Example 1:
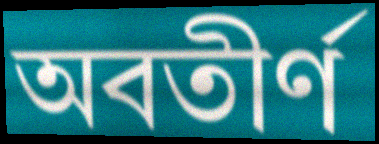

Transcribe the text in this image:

অবতীর্ণ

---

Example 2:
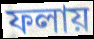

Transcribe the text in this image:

ফলায়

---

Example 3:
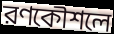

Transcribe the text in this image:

রণকৌশলে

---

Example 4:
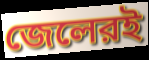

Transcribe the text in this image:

জেলেরই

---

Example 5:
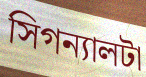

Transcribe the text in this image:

সিগন্যালটা